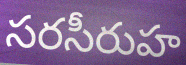
సరసీరుహ